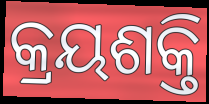
କ୍ରୟଶକ୍ତି